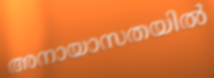
അനായാസതയിൽ